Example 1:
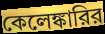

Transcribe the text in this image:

কেলেঙ্কারির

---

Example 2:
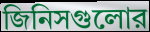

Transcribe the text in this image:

জিনিসগুলোর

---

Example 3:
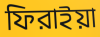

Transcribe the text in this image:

ফিরাইয়া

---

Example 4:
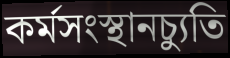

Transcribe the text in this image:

কর্মসংস্থানচ্যুতি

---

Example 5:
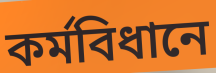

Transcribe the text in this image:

কর্মবিধানে